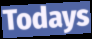
Todays